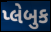
પ્લેબુક